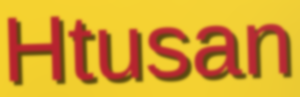
Htusan